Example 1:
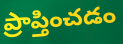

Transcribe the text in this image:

ప్రాప్తించడం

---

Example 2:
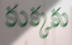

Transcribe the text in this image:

కుక్కకు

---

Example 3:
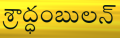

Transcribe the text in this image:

శ్రాద్ధంబులన్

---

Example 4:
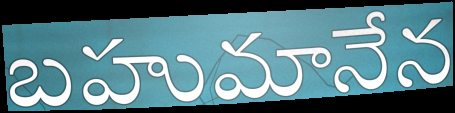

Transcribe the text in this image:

బహుమానేన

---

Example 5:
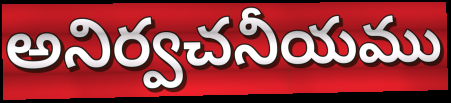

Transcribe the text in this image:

అనిర్వచనీయము